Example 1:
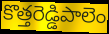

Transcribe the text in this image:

కొత్తరెడ్డిపాలెం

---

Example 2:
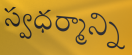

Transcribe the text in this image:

స్వధర్మాన్ని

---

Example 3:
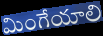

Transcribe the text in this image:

మింగేయాలి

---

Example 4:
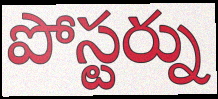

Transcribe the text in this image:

పోస్టర్ను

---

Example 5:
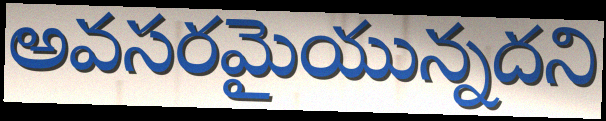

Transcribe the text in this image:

అవసరమైయున్నదని